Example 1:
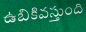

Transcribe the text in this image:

ఉబికివస్తుంది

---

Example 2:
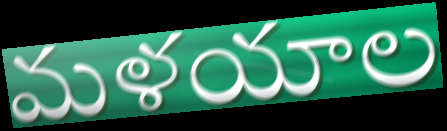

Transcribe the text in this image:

మళయాల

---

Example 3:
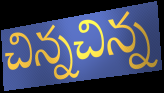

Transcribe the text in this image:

చిన్నచిన్న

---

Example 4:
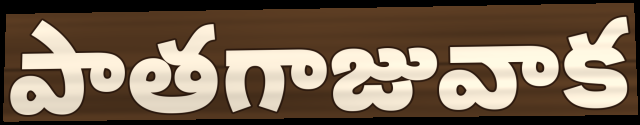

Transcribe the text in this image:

పాతగాజువాక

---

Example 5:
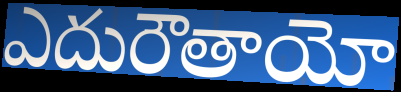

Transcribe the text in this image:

ఎదురౌతాయో